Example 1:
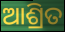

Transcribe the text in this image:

ଆଶ୍ରିତ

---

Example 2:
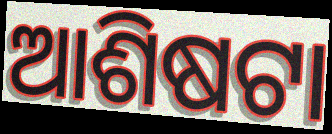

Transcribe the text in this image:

ଆଶିଷଟା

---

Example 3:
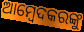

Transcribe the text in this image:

ଆମ୍ବେଦକରଙ୍କୁ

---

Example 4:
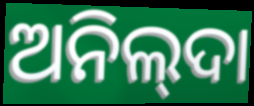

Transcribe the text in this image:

ଅନିଲ୍‌ଦା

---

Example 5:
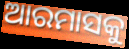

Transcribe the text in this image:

ଆରମାସକୁ